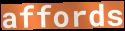
affords